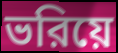
ভরিয়ে